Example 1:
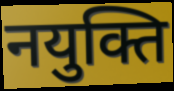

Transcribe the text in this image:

नयुक्ति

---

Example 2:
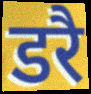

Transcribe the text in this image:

डरै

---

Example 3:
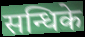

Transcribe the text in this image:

सन्धिके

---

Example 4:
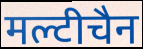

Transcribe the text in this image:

मल्टीचैन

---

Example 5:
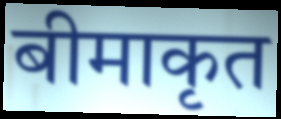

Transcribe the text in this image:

बीमाकृत